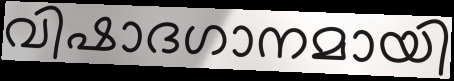
വിഷാദഗാനമായി